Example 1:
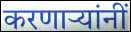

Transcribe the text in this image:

करणार्‍यांनीं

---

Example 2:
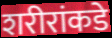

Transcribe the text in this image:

शरीरांकडे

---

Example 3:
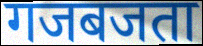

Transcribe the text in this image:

गजबजता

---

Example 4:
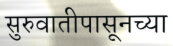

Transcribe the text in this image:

सुरुवातीपासूनच्या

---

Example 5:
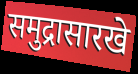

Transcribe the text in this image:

समुद्रासारखे